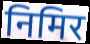
निमिर